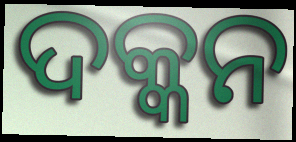
ଦକ୍କନ